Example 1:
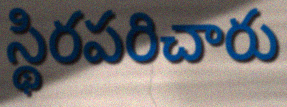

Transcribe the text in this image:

స్థిరపరిచారు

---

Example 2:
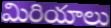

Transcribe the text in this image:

మిరియాలు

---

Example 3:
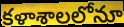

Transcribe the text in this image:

కళాశాలలోనూ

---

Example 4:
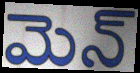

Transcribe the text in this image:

మెన్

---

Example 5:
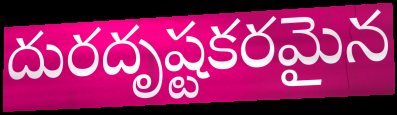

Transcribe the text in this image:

దురదృష్టకరమైన